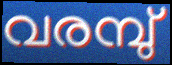
വരമ്പു്